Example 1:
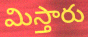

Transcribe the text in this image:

మిస్తారు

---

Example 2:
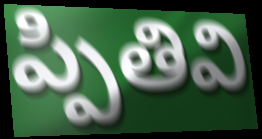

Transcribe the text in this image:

ప్పితివి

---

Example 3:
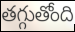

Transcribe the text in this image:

తగ్గుతోంది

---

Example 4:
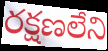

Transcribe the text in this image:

రక్షణలేని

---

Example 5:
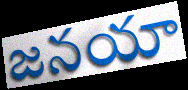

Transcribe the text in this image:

జనయా